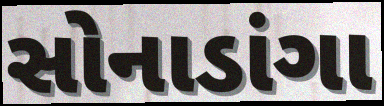
સોનાડાંગા